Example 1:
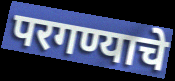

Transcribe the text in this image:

परगण्याचे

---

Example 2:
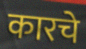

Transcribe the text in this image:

कारचे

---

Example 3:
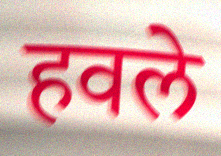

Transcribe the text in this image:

हवले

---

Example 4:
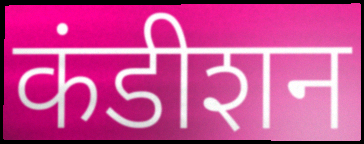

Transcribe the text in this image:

कंडीशन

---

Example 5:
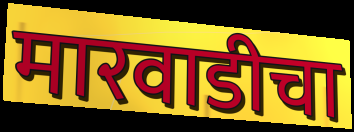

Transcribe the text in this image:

मारवाडीचा